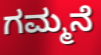
ಗಮ್ಮನೆ